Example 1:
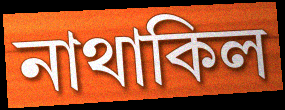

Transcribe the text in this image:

নাথাকিল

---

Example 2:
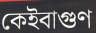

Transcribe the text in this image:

কেইবাগুণ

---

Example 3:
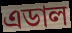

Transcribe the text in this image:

এডাল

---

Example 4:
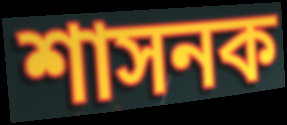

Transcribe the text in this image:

শাসনক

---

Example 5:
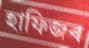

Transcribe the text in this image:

হাফিজৰ